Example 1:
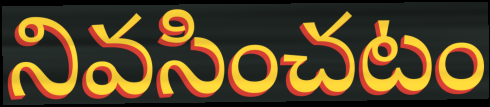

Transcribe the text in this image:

నివసించటం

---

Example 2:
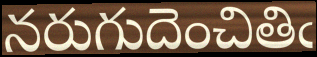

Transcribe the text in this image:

నరుగుదెంచితిఁ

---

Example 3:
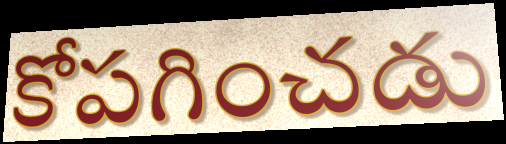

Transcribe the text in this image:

కోపగించడు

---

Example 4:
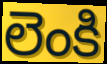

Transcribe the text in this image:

లెంకి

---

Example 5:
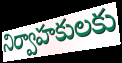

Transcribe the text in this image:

నిర్వాహకులకు